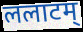
ललाटम्